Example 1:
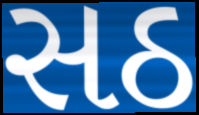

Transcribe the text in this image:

સઠ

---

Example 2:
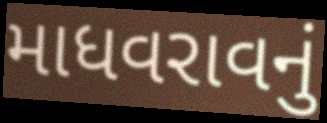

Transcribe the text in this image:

માધવરાવનું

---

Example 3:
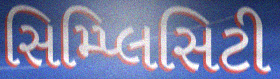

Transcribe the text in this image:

સિમ્પ્લિસિટી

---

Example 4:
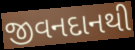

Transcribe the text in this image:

જીવનદાનથી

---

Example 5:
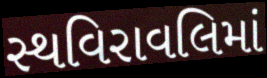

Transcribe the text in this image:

સ્થવિરાવલિમાં